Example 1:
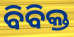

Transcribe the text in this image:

ବିବିକ୍ତ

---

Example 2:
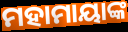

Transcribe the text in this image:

ମହାମାୟାଙ୍କ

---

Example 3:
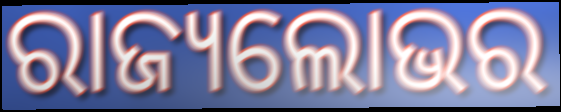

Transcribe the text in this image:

ରାଜ୍ୟଲୋଭର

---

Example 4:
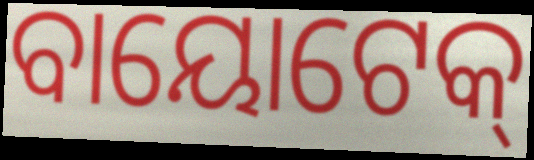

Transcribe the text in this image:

ବାୟୋଟେକ୍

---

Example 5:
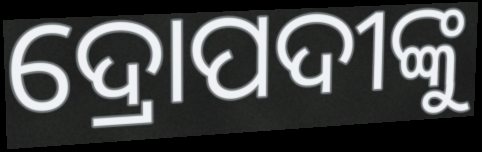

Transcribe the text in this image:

ଦ୍ରୋପଦୀଙ୍କୁ